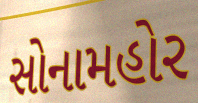
સોનામહોર